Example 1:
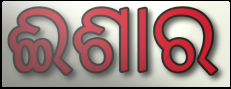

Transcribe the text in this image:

ଈଶାର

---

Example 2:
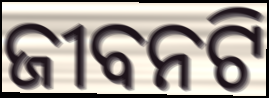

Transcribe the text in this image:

ଜୀବନଟି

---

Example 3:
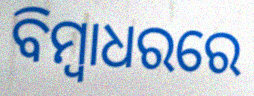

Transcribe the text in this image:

ବିମ୍ୱାଧରରେ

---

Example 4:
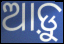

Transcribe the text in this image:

ଆଡ଼ୁ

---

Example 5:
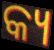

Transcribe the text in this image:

କ୍ୟ